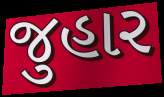
જુહાર